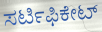
ಸರ್ಟಿಫಿಕೇಟ್